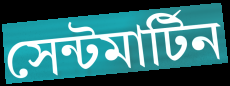
সেন্টমার্টিন